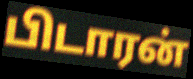
பிடாரன்